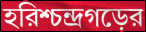
হরিশ্চন্দ্রগড়ের